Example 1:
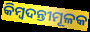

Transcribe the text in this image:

କିମ୍ବଦନ୍ତୀମୂଳକ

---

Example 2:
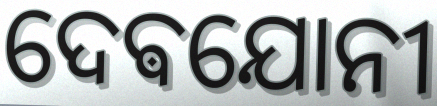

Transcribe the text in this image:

ଦେଵଯୋନୀ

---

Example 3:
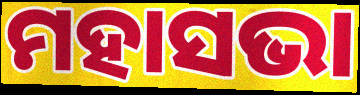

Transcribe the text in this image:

ମହାସଭା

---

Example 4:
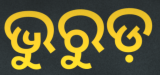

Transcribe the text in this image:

ଭୁରୁଡ଼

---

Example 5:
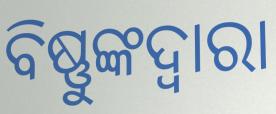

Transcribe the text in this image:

ବିଷ୍ଣୁଙ୍କଦ୍ୱାରା